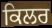
ਕਿਲਰ